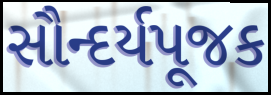
સૌન્દર્યપૂજક